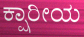
ಕ್ಷಾರೀಯ